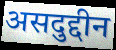
असदुद्दीन